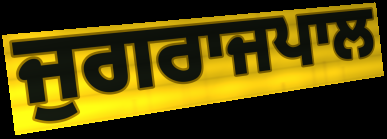
ਜੁਗਰਾਜਪਾਲ